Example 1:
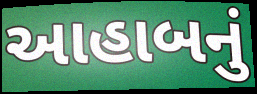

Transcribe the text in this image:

આહાબનું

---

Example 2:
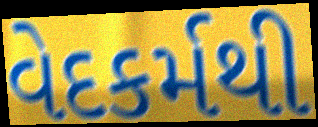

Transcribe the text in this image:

વેદકર્મથી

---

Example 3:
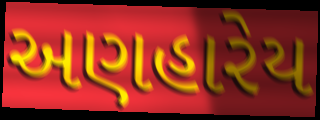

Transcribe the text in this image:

અણહારેય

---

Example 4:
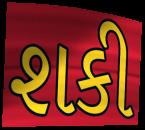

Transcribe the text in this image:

શકી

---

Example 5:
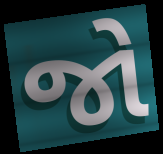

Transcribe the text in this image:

જો